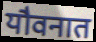
यौवनात